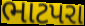
ભાટપરા